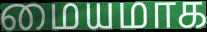
மையமாக